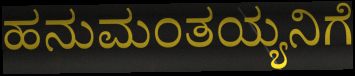
ಹನುಮಂತಯ್ಯನಿಗೆ